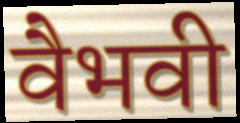
वैभवी